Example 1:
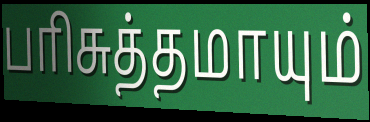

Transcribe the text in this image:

பரிசுத்தமாயும்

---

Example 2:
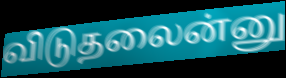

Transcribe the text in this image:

விடுதலைன்னு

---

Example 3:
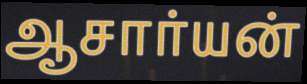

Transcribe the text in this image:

ஆசார்யன்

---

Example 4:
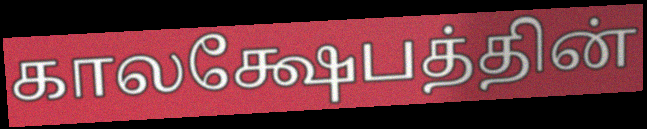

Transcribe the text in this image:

காலக்ஷேபத்தின்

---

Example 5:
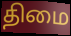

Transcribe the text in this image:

திமை